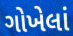
ગોખેલાં